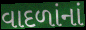
વાદળાંનાં